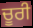
ਚੂਰੀ